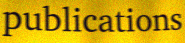
publications